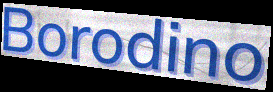
Borodino